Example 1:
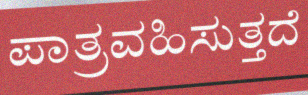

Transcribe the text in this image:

ಪಾತ್ರವಹಿಸುತ್ತದೆ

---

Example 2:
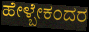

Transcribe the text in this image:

ಹೇಳ್ಬೇಕಂದರ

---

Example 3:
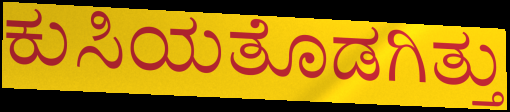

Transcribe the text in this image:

ಕುಸಿಯತೊಡಗಿತ್ತು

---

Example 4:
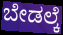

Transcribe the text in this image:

ಬೇಡಲ್ಕೆ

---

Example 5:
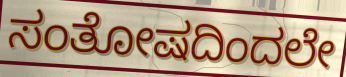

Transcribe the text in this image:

ಸಂತೋಷದಿಂದಲೇ